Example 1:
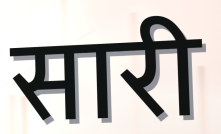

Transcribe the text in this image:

सारी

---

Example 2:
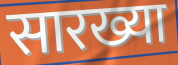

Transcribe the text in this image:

सारख्या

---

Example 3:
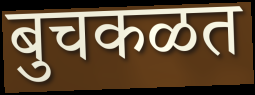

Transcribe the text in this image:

बुचकळत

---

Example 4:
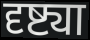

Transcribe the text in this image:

दृष्ट्या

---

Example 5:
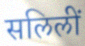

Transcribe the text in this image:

सलिलीं